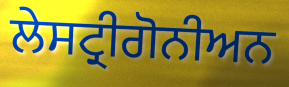
ਲੇਸਟ੍ਰੀਗੋਨੀਅਨ